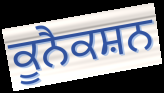
ਕੂਨੈਕਸ਼ਨ